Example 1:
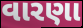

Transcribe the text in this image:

વારણા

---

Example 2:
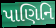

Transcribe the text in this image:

પાણિનિ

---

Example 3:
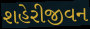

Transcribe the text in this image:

શહેરીજીવન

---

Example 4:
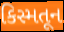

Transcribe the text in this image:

કિસ્મતૂન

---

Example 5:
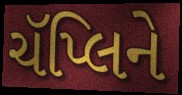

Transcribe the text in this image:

ચૅપ્લિને